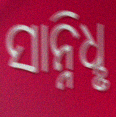
ସାନ୍ନିଧୢ